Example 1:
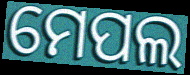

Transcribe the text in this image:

ମେପଲ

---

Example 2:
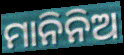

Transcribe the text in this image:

ମାନିନିଅ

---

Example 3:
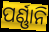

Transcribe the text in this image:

ପର୍ଣ୍ଣାନି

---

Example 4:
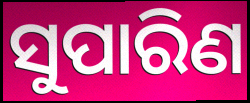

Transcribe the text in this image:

ସୁପାରିଣ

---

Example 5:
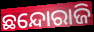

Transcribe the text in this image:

ଛନ୍ଦୋରାଜି